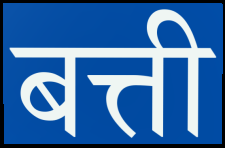
बत्ती